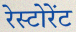
रेस्‍टोरेंट